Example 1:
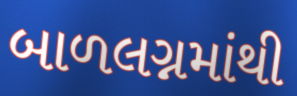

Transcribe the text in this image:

બાળલગ્નમાંથી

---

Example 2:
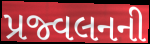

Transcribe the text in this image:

પ્રજ્વલનની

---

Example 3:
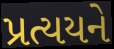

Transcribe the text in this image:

પ્રત્યયને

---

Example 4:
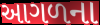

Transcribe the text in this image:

આગળના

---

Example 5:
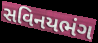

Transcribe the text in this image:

સવિનયભંગ